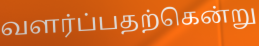
வளர்ப்பதற்கென்று